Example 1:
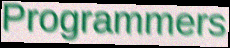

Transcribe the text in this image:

Programmers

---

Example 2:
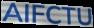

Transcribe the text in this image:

AIFCTU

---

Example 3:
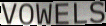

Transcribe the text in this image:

VOWELS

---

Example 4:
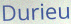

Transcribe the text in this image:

Durieu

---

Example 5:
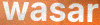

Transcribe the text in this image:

wasar